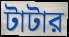
টাটার